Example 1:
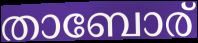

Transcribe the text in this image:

താബോര്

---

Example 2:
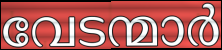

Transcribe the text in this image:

വേടന്മാർ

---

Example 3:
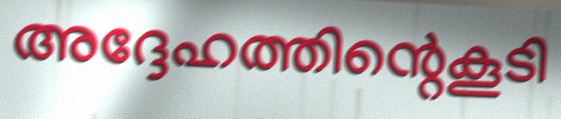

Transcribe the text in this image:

അദ്ദേഹത്തിന്റെകൂടി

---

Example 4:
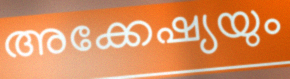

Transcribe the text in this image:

അക്കേഷ്യയും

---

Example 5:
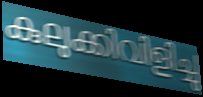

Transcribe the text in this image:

കുലുക്കിവിളിച്ചു